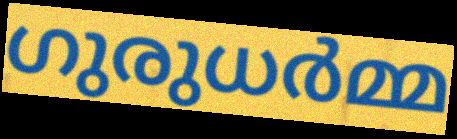
ഗുരുധർമ്മ